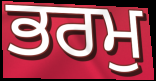
ਭਰਮੁ